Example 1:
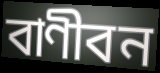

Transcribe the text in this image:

বাণীবন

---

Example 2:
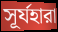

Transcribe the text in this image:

সূর্যহারা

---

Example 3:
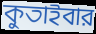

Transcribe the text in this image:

কুতাইবার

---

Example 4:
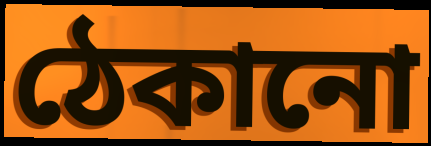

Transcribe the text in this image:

ঠেকানো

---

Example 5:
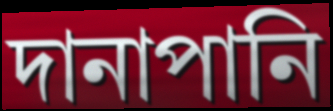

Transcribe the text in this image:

দানাপানি